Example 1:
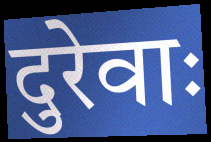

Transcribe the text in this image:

दुरेवाः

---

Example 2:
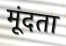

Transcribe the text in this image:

मूंदता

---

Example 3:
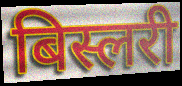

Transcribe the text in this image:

बिस्लरी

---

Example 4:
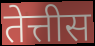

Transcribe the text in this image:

तेत्तीस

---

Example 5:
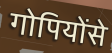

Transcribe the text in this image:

गोपियोंसे